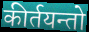
कीर्तयन्तो